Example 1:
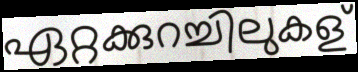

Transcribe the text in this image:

ഏറ്റക്കുറച്ചിലുകള്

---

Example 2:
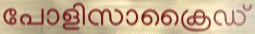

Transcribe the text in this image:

പോളിസാക്രൈഡ്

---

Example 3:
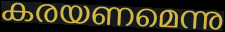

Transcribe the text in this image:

കരയണമെന്നു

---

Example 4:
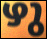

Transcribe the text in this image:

ഴു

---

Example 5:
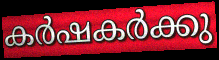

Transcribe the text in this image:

കർഷകർക്കു